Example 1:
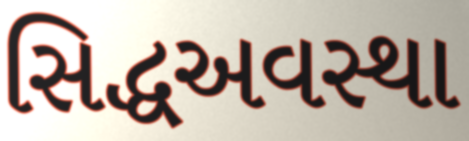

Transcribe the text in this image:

સિદ્ધઅવસ્થા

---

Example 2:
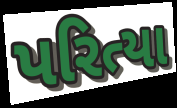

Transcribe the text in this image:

પરિત્યા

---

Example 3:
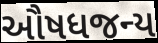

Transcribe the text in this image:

ઔષધજન્ય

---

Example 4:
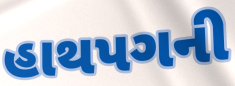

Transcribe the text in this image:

હાથપગની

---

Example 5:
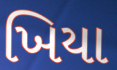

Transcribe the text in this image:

ખિયા